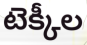
టెక్కీల